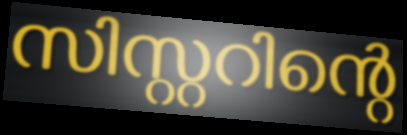
സിസ്റ്ററിന്റെ